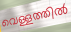
വെള്ളത്തിൽ